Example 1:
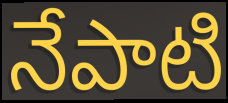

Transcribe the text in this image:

నేపాటి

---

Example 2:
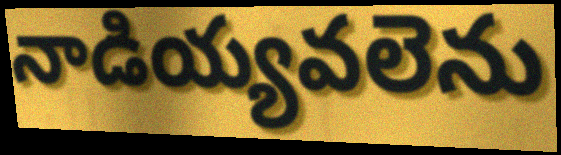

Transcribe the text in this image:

నాడియ్యవలెను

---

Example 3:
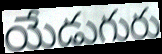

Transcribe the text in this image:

యేడుగురు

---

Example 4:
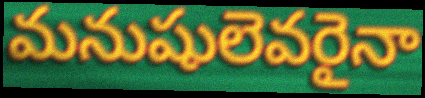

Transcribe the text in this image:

మనుషులెవరైనా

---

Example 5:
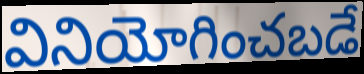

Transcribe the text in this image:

వినియోగించబడే